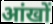
आंखों